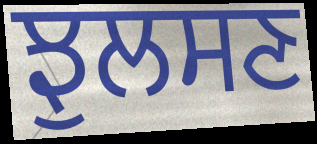
ਝੁਲਸਣ